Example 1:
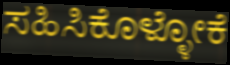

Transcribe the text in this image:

ಸಹಿಸಿಕೊಳ್ಳೋಕೆ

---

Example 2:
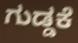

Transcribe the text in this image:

ಗುಡ್ಡಕೆ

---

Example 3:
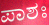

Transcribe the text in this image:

ಪಾಶಃ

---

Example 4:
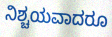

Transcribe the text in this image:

ನಿಶ್ಚಯವಾದರೂ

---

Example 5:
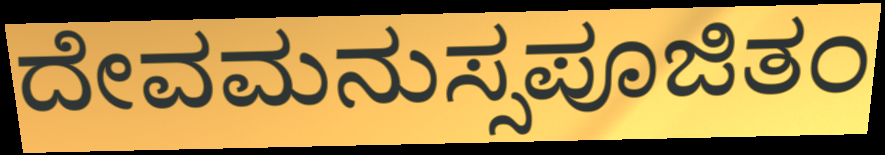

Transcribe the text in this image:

ದೇವಮನುಸ್ಸಪೂಜಿತಂ